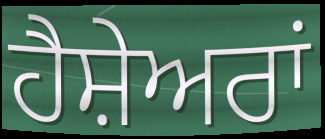
ਹੈਸ਼ੇਅਰਾਂ